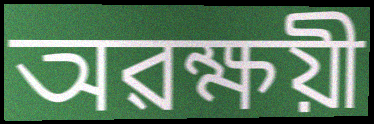
অৱক্ষয়ী